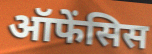
ऑफेंसिस